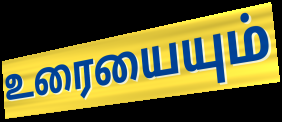
உரையையும்